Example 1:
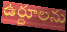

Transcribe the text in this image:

ఉర్దూలను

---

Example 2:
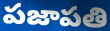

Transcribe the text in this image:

పజాపతి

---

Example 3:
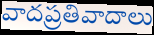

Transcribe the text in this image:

వాదప్రతివాదాలు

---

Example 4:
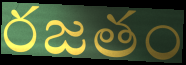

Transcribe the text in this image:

రజతం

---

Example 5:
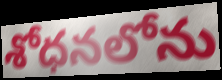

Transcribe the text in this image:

శోధనలోను